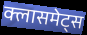
क्लासमेट्स